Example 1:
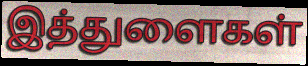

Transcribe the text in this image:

இத்துளைகள்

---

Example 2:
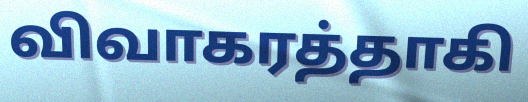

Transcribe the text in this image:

விவாகரத்தாகி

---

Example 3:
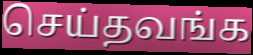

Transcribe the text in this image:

செய்தவங்க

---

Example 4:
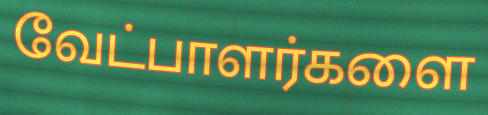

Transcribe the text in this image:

வேட்பாளர்களை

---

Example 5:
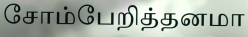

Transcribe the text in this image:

சோம்பேறித்தனமா